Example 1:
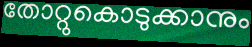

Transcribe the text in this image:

തോറ്റുകൊടുക്കാനും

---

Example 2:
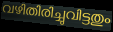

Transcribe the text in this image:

വഴിതിരിച്ചുവിട്ടതും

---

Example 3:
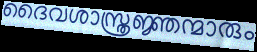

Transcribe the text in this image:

ദൈവശാസ്ത്രജ്ഞന്മാരും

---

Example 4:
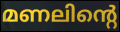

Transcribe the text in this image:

മണലിന്റെ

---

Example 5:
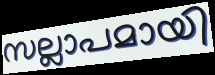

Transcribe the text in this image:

സല്ലാപമായി